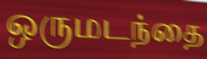
ஒருமடந்தை